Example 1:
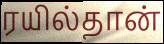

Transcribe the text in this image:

ரயில்தான்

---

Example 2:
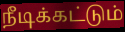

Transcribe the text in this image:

நீடிக்கட்டும்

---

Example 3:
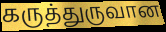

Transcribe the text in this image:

கருத்துருவான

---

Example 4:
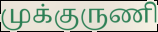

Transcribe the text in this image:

முக்குருணி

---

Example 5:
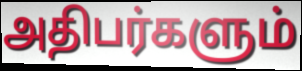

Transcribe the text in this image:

அதிபர்களும்